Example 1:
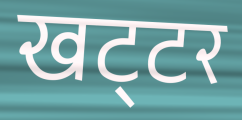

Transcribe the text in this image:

खट्‌टर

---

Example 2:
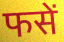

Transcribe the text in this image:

फसें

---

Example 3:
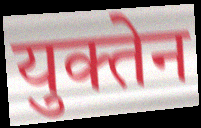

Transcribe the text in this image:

युक्तेन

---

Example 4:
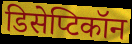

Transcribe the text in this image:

डिसेप्टिकॉन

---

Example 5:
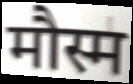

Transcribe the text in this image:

मौस्म